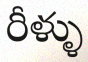
రీళ్ళు